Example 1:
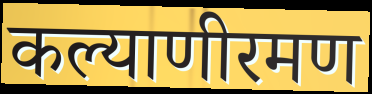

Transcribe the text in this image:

कल्याणीरमण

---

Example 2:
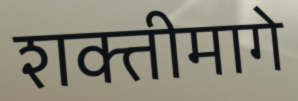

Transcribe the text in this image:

शक्तीमागे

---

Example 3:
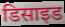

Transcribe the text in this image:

डिसाइड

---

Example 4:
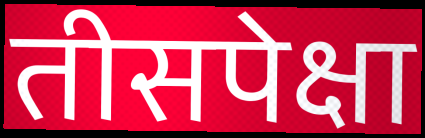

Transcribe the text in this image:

तीसपेक्षा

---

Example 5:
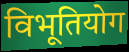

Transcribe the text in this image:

विभूतियोग